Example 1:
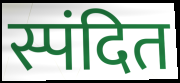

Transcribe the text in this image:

स्पंदित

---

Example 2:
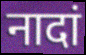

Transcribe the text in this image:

नादां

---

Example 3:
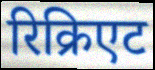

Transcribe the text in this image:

रिक्रिएट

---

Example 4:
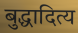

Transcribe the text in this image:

बुद्धादित्य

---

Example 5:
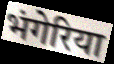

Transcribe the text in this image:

भंगेरिया